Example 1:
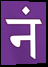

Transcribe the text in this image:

नं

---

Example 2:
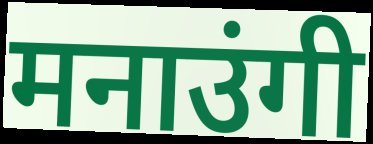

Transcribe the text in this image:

मनाउंगी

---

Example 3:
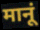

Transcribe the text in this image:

मानूं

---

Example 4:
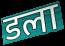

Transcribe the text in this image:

डला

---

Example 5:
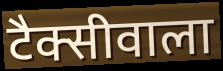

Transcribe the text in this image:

टैक्सीवाला